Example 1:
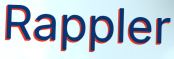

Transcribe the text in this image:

Rappler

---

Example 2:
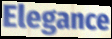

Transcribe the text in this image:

Elegance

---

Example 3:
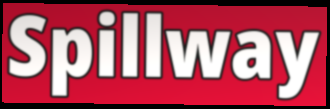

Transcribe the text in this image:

Spillway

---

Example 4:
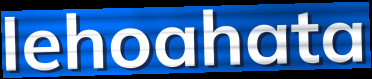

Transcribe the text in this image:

Iehoahata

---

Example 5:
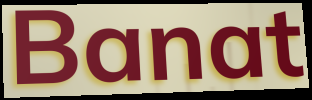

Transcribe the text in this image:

Banat